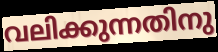
വലിക്കുന്നതിനു